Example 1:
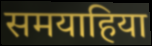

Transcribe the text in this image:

समयाहिया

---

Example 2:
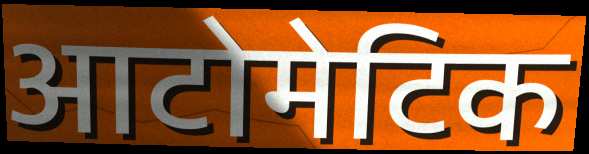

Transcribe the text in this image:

आटोमेटिक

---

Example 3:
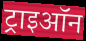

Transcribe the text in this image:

ट्राइऑन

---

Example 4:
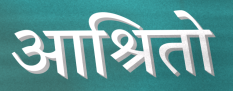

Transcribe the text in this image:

आश्रितो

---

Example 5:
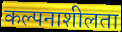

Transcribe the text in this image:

कल्पनाशीलता